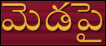
మెడపై